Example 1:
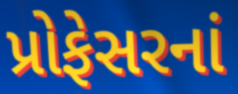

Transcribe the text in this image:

પ્રોફેસરનાં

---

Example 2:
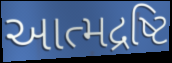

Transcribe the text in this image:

આત્મદ્રષ્ટિ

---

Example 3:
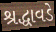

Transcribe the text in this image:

શ્રદ્ધાવડે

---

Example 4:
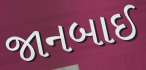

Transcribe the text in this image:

જાનબાઈ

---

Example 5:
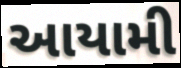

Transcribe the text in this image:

આયામી